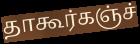
தாகூர்கஞ்ச்